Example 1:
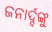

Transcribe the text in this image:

ଜନାର୍ଦ୍ଦଙ୍କୁ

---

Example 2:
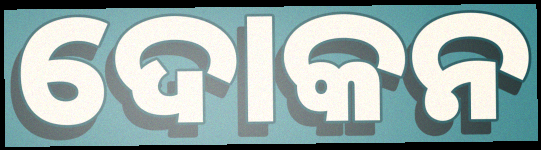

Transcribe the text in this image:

ଦୋକନ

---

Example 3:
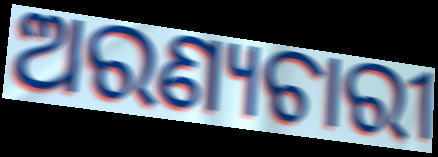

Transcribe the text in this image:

ଅରଣ୍ୟଚାରୀ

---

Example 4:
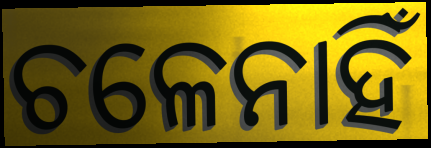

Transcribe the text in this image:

ଚଳେନାହିଁ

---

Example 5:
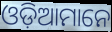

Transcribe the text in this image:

ଓଡ଼ିଆମାନେ